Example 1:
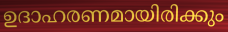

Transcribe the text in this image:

ഉദാഹരണമായിരിക്കും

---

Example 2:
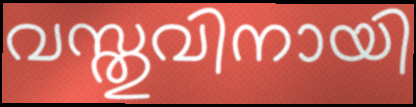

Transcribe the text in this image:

വസ്തുവിനായി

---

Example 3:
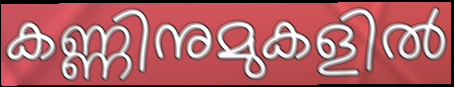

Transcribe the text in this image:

കണ്ണിനുമുകളിൽ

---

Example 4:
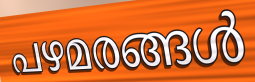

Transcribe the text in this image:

പഴമരങ്ങൾ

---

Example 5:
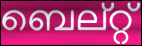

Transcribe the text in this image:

ബെല്റ്റ്